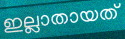
ഇല്ലാതായത്